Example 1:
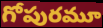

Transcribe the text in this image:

గోపురమూ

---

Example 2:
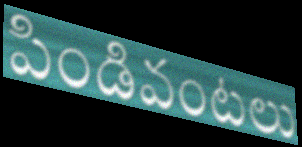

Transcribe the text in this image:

పిండివంటలు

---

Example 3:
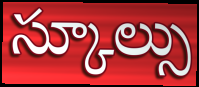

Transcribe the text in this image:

స్కూల్సు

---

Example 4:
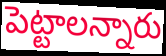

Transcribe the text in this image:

పెట్టాలన్నారు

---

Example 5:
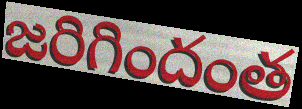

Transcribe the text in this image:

జరిగిందంత